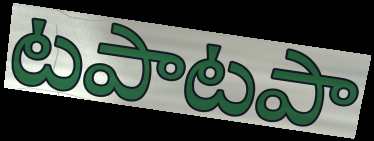
టపాటపా